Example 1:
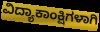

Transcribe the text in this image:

ವಿದ್ಯಾಕಾಂಕ್ಷಿಗಳಾಗಿ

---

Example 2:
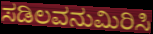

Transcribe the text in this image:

ಸಡಿಲವನುಮಿರಿಸಿ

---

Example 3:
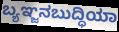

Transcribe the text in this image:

ಬ್ಯಞ್ಜನಬುದ್ಧಿಯಾ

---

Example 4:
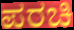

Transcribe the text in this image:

ಪರಚಿ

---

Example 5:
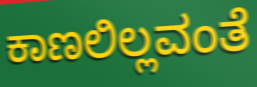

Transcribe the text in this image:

ಕಾಣಲಿಲ್ಲವಂತೆ